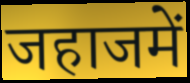
जहाजमें